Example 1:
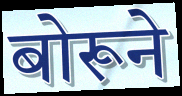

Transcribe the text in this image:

बोरूने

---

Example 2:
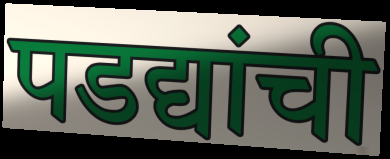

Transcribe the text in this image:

पडद्यांची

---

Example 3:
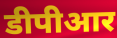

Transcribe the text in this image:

डीपीआर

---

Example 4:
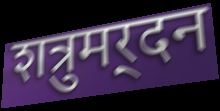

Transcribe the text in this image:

शत्रुमर्दन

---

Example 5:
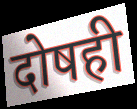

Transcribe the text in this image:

दोषही